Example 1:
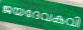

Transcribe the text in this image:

ജയദേവകവി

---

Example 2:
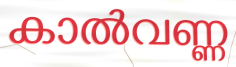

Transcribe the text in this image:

കാൽവണ്ണ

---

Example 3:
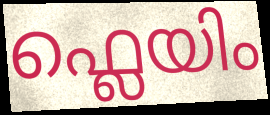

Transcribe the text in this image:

ഫ്ലെയിം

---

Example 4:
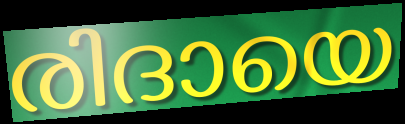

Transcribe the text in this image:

രിദായെ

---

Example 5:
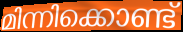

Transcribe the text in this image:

മിന്നിക്കൊണ്ട്